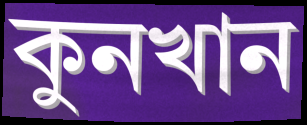
কুনখান